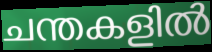
ചന്തകളിൽ